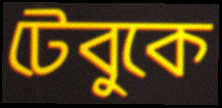
টেবুকে